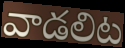
వాడలిట